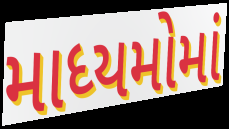
માધ્યમોમાં